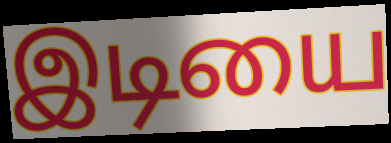
இடியை